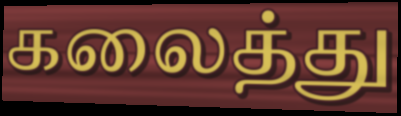
கலைத்து